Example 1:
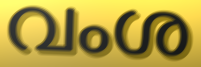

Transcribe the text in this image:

വംശ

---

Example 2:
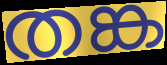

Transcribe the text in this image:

തങ്ക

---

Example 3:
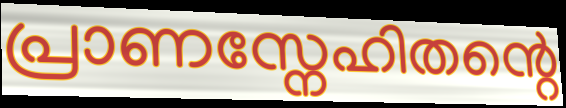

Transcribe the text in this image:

പ്രാണസ്നേഹിതന്റെ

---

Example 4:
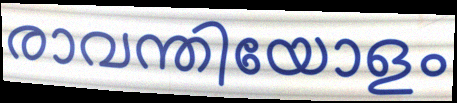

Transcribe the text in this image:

രാവന്തിയോളം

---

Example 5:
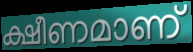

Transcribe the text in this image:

ക്ഷീണമാണ്